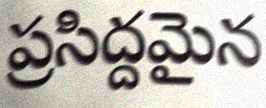
ప్రసిద్దమైన